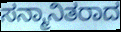
ಸನ್ಮಾನಿತರಾದ